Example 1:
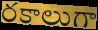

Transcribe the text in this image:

రకాలుగా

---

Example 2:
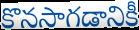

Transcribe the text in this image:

కొనసాగడానికీ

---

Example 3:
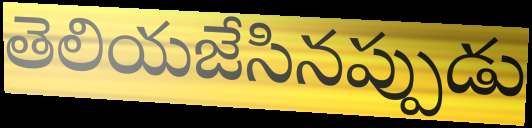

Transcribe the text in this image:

తెలియజేసినప్పుడు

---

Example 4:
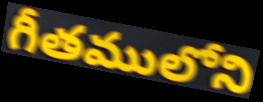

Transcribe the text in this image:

గీతములోని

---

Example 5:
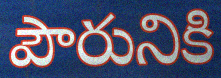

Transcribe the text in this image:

పౌరునికి